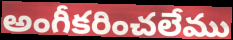
అంగీకరించలేము